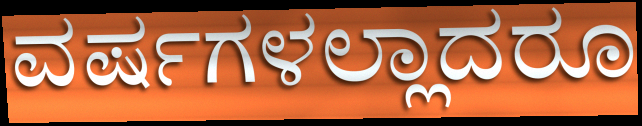
ವರ್ಷಗಳಲ್ಲಾದರೂ